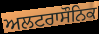
ਅਲਟਰਾਸੌਨਿਕ